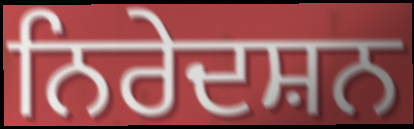
ਨਿਰੇਦਸ਼ਨ